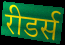
रीडर्स